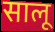
सालू